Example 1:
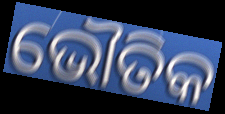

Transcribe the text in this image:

ଭୌତିକ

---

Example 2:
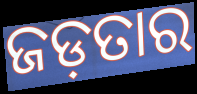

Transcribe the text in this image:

ଜଡ଼ତାର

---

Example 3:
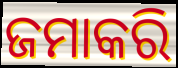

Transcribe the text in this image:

ଜମାକରି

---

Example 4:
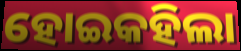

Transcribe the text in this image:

ହୋଇକହିଲା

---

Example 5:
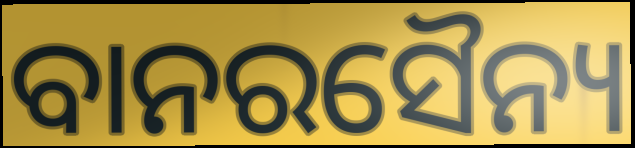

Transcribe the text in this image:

ବାନରସୈନ୍ୟ